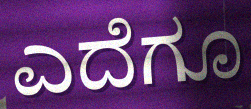
ಎದೆಗೂ